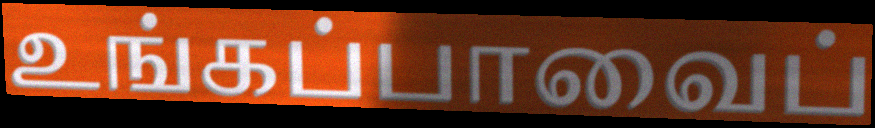
உங்கப்பாவைப்